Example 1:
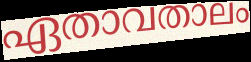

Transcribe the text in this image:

ഏതാവതാലം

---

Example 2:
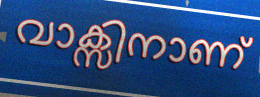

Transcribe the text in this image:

വാക്സിനാണ്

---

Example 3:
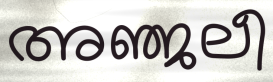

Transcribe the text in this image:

അഞ്ജലീ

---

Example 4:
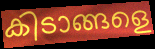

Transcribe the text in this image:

കിടാങ്ങളെ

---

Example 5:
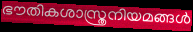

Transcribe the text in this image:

ഭൗതികശാസ്ത്രനിയമങ്ങൾ